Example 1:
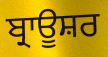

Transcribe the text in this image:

ਬ੍ਰਾਊਸ਼ਰ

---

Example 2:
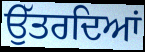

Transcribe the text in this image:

ਉੱਤਰਦਿਆਂ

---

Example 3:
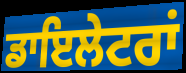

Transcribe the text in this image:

ਡਾਇਲੇਟਰਾਂ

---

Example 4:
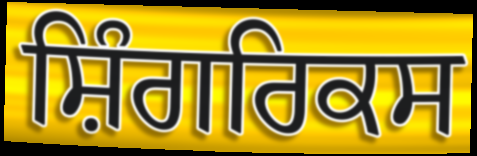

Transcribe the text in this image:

ਸ਼ਿੰਗਰਿਕਸ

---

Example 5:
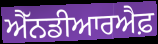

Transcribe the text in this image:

ਐੱਨਡੀਆਰਐਫ਼